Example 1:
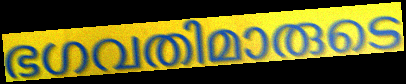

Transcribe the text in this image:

ഭഗവതിമാരുടെ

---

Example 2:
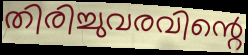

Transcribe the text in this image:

തിരിച്ചുവരവിന്റെ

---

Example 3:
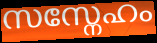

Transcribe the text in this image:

സസ്നേഹം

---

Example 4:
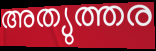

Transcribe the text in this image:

അത്യുത്തര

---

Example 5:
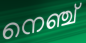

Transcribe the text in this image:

നെഞ്ച്